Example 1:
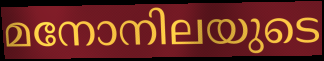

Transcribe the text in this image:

മനോനിലയുടെ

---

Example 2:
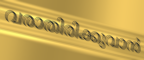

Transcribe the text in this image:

വരാതിരിക്കുവാൻ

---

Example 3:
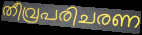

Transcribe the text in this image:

തീവ്രപരിചരണ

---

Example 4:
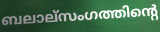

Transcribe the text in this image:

ബലാല്സംഗത്തിന്റെ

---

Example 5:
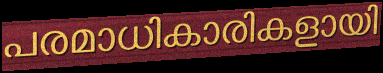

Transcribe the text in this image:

പരമാധികാരികളായി